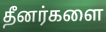
தீனர்களை